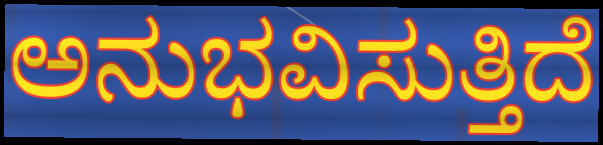
ಅನುಭವಿಸುತ್ತಿದೆ